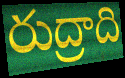
రుద్రాది